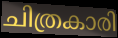
ചിത്രകാരി